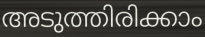
അടുത്തിരിക്കാം